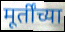
मूर्तींच्या